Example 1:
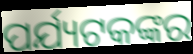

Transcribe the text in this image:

ପର୍ଯ୍ୟଟକଙ୍କର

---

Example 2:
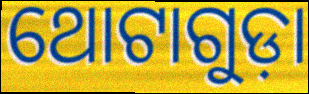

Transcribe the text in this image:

ଥୋଟାଗୁଡ଼ା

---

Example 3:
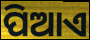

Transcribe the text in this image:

ପିଆଏ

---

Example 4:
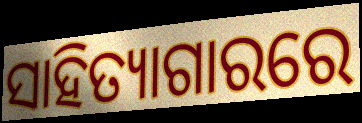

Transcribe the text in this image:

ସାହିତ୍ୟାଗାରରେ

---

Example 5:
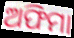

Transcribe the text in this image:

ଅଫିମା